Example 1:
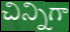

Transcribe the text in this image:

చిన్నిగా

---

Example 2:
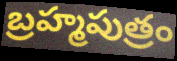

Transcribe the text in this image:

బ్రహ్మపుత్రం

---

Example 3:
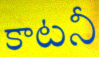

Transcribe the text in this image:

కాటనీ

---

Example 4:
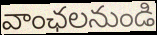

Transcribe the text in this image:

వాంఛలనుండి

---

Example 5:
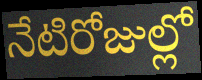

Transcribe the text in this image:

నేటిరోజుల్లో